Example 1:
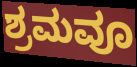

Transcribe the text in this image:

ಶ್ರಮವೂ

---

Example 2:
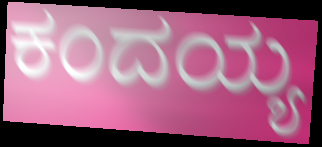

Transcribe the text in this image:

ಕಂದಯ್ಯ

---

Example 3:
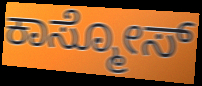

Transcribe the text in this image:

ಕಾಸ್ಮೋಸ್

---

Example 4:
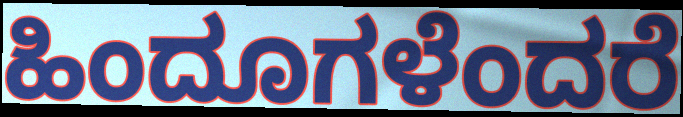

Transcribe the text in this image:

ಹಿಂದೂಗಳೆಂದರೆ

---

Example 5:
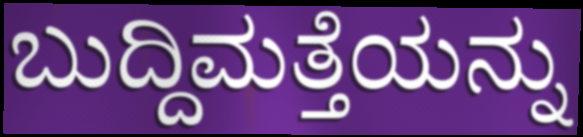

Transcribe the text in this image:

ಬುದ್ದಿಮತ್ತೆಯನ್ನು